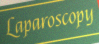
Laparoscopy